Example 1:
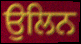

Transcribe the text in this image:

ਉਲਿਨ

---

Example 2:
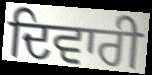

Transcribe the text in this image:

ਦਿਵਾਰੀ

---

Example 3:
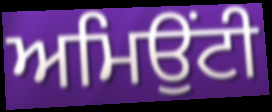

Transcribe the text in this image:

ਅਮਿਉਂਟੀ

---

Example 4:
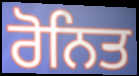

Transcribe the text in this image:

ਰੋਨਿਤ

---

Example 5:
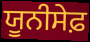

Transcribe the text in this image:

ਯੂਨੀਸੇਫ਼